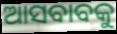
ଆସବାବକୁ